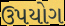
ઉપયોગ